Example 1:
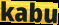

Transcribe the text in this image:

kabu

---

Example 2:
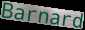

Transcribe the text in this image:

Barnard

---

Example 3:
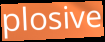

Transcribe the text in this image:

plosive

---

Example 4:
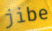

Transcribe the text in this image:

jibe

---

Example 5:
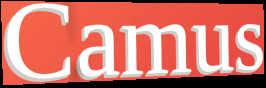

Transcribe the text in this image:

Camus